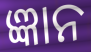
ଜ୍ଞାନ